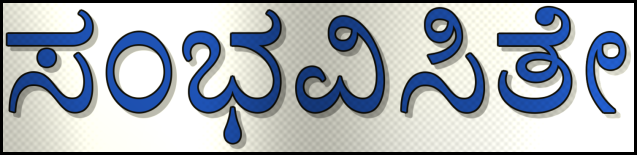
ಸಂಭವಿಸಿತೇ